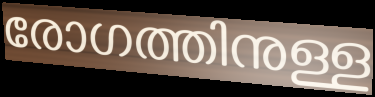
രോഗത്തിനുള്ള